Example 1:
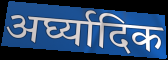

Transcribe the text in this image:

अर्घ्यादिक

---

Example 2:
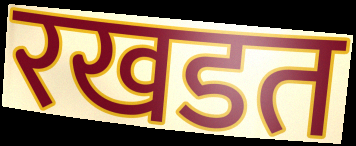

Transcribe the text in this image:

रखडत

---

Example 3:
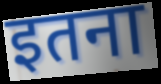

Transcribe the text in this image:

इतना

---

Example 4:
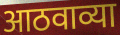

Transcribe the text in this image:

आठवाव्या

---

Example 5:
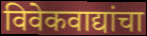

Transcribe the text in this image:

विवेकवाद्यांचा